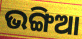
ଭଙ୍ଗିଆ